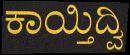
ಕಾಯ್ತಿದ್ವಿ